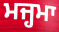
ਮਜ੍ਹਮਾ